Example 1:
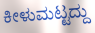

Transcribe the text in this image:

ಕೀಳುಮಟ್ಟದ್ದು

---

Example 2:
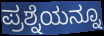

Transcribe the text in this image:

ಪ್ರಶ್ನೆಯನ್ನೂ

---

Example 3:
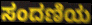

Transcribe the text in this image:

ಸಂದಣಿಯ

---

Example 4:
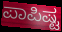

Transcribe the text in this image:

ಪಾಪಿಷ್ಟ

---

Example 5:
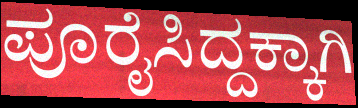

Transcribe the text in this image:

ಪೂರೈಸಿದ್ದಕ್ಕಾಗಿ